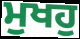
ਮੁਖਹੁ